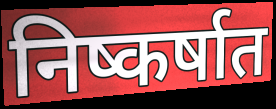
निष्कर्षात